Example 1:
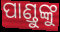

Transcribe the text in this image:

ପାଣ୍ଡୁଙ୍କୁ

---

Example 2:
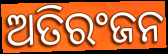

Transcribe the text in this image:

ଅତିରଂଜନ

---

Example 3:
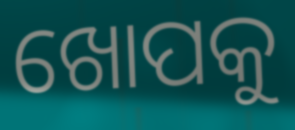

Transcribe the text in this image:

ଖୋପକୁ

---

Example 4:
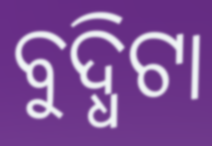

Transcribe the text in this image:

ବୁଦ୍ଧିଟା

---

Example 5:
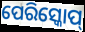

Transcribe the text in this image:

ପେରିସ୍କୋପ୍